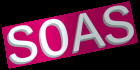
SOAS